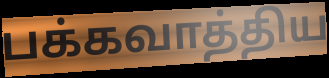
பக்கவாத்திய